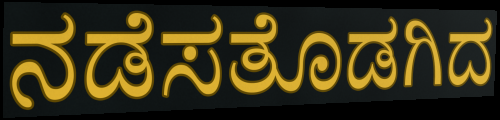
ನಡೆಸತೊಡಗಿದ